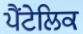
ਪੈਂਟੇਲਿਕ